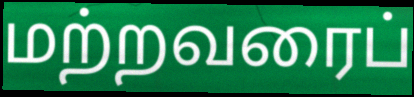
மற்றவரைப்